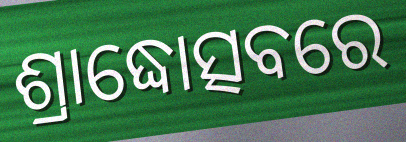
ଶ୍ରାଦ୍ଧୋତ୍ସବରେ